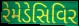
રેમેડેસિવિર